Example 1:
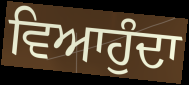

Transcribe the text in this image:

ਵਿਆਹੁੰਦਾ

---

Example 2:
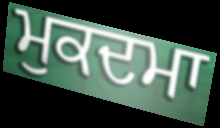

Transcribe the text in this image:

ਮੁਕਦਮਾ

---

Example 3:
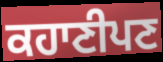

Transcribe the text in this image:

ਕਹਾਣੀਪਣ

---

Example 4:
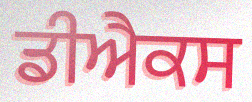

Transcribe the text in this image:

ਡੀਐਕਸ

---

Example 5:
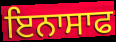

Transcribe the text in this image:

ਇਨਾਸਾਫ